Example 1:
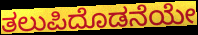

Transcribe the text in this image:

ತಲುಪಿದೊಡನೆಯೇ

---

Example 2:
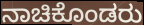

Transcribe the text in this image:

ನಾಚಿಕೊಂಡರು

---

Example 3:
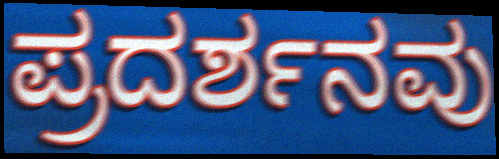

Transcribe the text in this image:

ಪ್ರದರ್ಶನವು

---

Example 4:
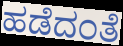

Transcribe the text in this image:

ಹಡೆದಂತೆ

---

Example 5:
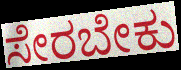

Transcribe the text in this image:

ಸೇರಬೇಕು